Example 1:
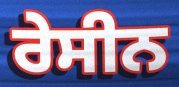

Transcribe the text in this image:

ਰੇਸੀਨ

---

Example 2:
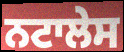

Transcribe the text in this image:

ਨਟਾਲੇਸ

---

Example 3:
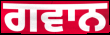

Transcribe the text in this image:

ਗਵਾਨ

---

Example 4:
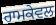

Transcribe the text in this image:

ਰਾਮਕੇਵਲ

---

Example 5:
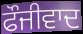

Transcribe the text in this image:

ਫੌਜੀਵਾਦ